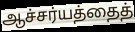
ஆச்சர்யத்தைத்